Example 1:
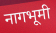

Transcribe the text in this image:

नागभूमी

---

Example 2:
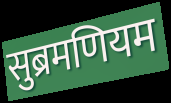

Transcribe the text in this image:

सुब्रमणियम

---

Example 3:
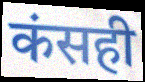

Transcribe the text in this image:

कंसही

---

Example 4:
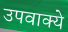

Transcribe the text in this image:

उपवाक्ये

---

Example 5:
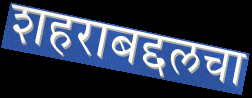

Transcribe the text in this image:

शहराबद्दलचा